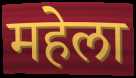
महेला